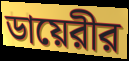
ডায়েরীর